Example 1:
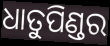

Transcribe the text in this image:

ଧାତୁପିଣ୍ଡର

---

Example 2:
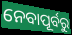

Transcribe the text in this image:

ନେବାପୂର୍ବରୁ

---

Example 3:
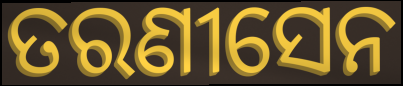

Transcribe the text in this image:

ତରଣୀସେନ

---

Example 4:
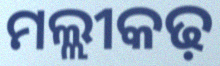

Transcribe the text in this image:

ମଲ୍ଲୀକଢ଼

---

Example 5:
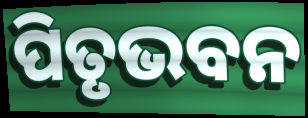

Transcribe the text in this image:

ପିତୃଭବନ